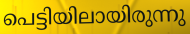
പെട്ടിയിലായിരുന്നു